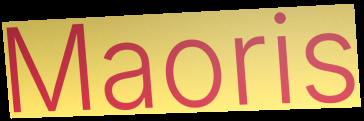
Maoris